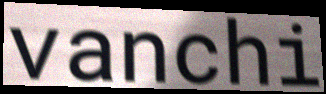
vanchi